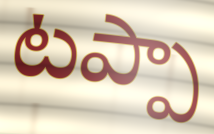
టప్పా